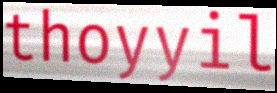
thoyyil